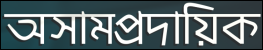
অসামপ্রদায়িক